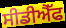
ਸੀਡੀਐੱਫ